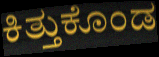
ಕಿತ್ತುಕೊಂಡ